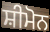
ਸ਼ੀਮੋਨ